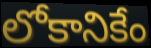
లోకానికేం